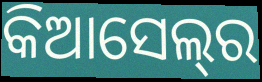
କିଆସେଲ୍‌ର